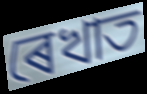
ৰেখাত